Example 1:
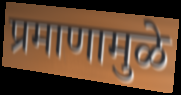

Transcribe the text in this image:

प्रमाणामुळे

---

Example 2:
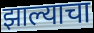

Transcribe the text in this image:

झाल्याचा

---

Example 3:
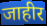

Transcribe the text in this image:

जाहीर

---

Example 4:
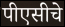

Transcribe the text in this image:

पीएसीचे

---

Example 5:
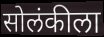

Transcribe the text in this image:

सोलंकीला